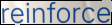
reinforce